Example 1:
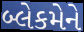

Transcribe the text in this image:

બ્લેકમેને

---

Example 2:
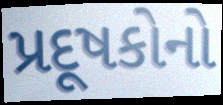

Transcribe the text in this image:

પ્રદૂષકોનો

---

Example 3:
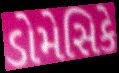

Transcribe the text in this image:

ડોમેસિકે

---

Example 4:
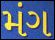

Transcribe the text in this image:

મંગ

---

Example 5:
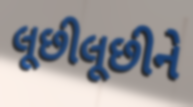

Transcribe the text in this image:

લૂછીલૂછીને